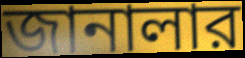
জানালার